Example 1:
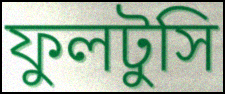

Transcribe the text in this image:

ফুলটুসি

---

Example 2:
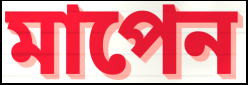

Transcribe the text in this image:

মাপেন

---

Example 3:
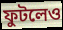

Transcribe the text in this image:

ফুটলেও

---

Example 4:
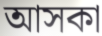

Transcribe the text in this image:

আসকা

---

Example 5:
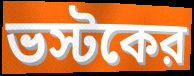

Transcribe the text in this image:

ভস্টকের